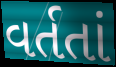
વર્તતાં